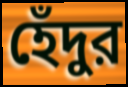
হেঁদুর